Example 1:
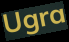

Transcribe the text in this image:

Ugra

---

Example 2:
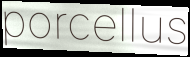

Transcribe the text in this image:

porcellus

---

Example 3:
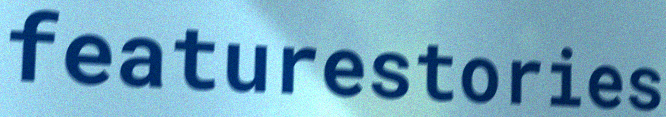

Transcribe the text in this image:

featurestories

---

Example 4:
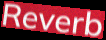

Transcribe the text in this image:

Reverb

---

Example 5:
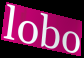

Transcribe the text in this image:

lobo